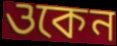
ওকেন